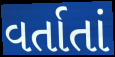
વર્તાતાં